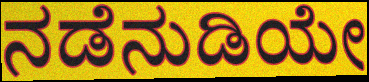
ನಡೆನುಡಿಯೇ